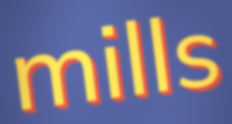
mills